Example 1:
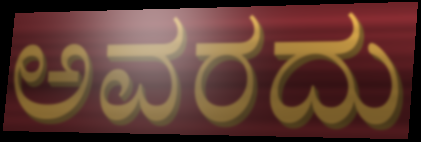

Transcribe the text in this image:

ಅವರದು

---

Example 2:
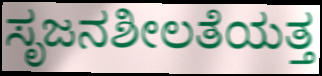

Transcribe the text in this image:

ಸೃಜನಶೀಲತೆಯತ್ತ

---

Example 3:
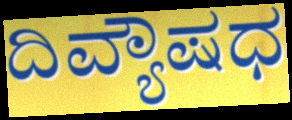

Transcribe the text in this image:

ದಿವ್ಯೌಷಧ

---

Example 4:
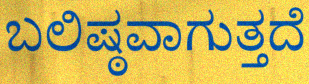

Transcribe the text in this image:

ಬಲಿಷ್ಠವಾಗುತ್ತದೆ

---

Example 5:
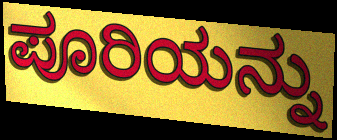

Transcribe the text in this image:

ಪೂರಿಯನ್ನು